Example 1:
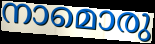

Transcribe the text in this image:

നാമൊരു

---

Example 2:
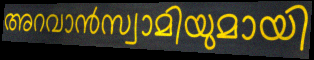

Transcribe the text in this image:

അറവാൻസ്വാമിയുമായി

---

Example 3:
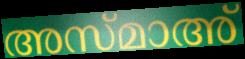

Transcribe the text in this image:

അസ്മാഅ്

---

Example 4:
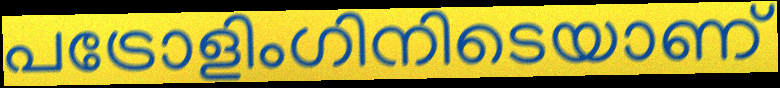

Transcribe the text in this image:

പട്രോളിംഗിനിടെയാണ്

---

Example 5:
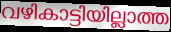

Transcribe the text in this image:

വഴികാട്ടിയില്ലാത്ത